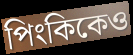
পিংকিকেও